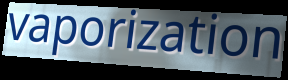
vaporization